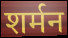
शर्मन